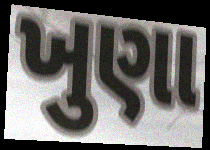
ખુણા